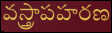
వస్త్రాపహరణ